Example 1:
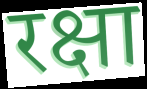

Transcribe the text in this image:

रक्षा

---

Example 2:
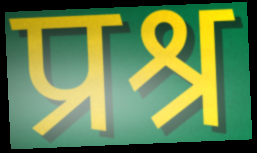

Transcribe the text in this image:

प्रश्र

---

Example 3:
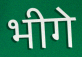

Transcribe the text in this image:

भीगे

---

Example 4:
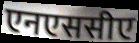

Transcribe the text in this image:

एनएससीए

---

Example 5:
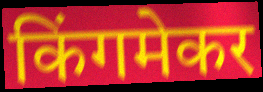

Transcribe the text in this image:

किंगमेकर